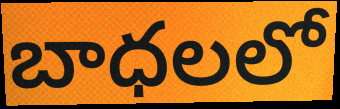
బాధలలో